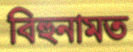
বিহুনামত